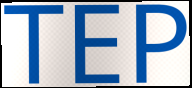
TEP